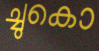
ച്ചുകൊ